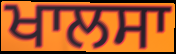
ਖਾਲਸਾ